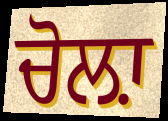
ਚੋਲ਼ਾ